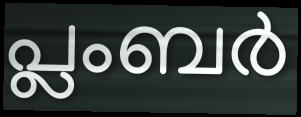
പ്ലംബർ